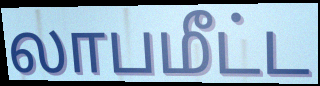
லாபமீட்ட